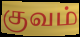
குவம்